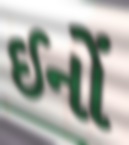
ઈનોં